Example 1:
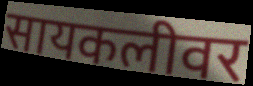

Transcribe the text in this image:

सायकलीवर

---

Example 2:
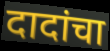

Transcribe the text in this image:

दादांचा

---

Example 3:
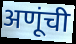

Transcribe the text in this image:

अणूंची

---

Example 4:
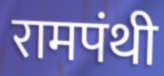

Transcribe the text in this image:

रामपंथी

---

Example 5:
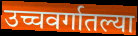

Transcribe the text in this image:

उच्चवर्गातल्या